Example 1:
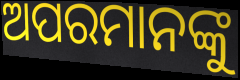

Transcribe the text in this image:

ଅପରମାନଙ୍କୁ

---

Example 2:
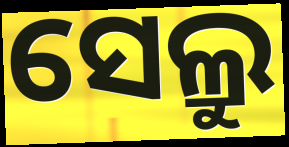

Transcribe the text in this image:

ସେଲ୍ରୁ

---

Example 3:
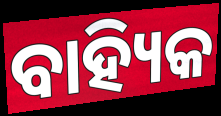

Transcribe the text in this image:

ବାହ୍ୟିକ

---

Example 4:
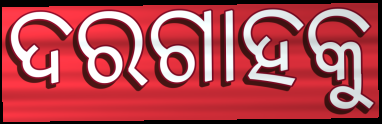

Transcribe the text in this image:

ଦରଗାହକୁ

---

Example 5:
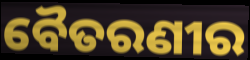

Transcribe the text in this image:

ବୈତରଣୀର